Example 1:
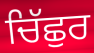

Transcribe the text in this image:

ਚਿੱਛੁਰ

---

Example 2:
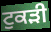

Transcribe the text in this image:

ਟੁਕਡ਼ੀ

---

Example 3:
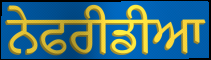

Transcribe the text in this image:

ਨੇਫਰੀਡੀਆ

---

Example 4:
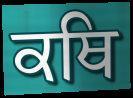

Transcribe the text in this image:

ਕਥਿ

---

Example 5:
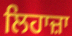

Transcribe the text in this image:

ਲਿਹਾਜ਼ਾ